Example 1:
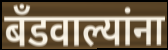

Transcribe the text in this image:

बँडवाल्यांना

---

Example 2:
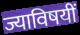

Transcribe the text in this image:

ज्याविषयीं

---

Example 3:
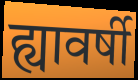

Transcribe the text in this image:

ह्यावर्षी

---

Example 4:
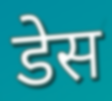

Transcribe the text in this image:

डेस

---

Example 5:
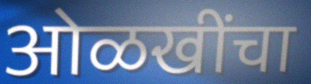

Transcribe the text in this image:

ओळखींचा